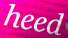
heed